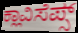
ಕ್ಲಾವಿಸೆಪ್ಸ್